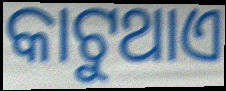
କାଟୁଥାଏ